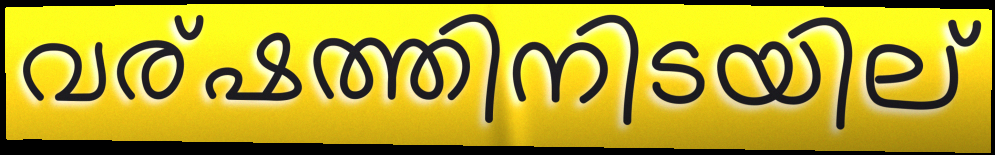
വര്ഷത്തിനിടയില്